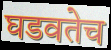
घडवतेच